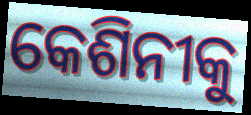
କେଶିନୀକୁ